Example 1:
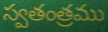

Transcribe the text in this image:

స్వతంత్రము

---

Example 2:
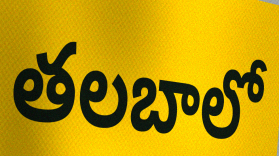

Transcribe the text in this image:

తలబాలో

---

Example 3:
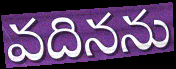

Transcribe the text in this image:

వదినను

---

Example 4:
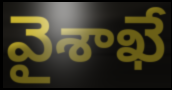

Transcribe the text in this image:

వైశాఖే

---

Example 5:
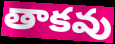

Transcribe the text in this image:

తాకవు